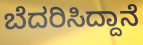
ಬೆದರಿಸಿದ್ದಾನೆ